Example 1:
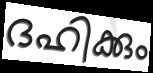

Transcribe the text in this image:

ദഹിക്കും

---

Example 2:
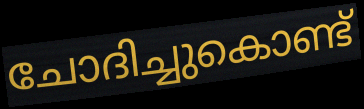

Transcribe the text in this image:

ചോദിച്ചുകൊണ്ട്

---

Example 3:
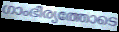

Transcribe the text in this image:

ഗാംഭീര്യത്തോടെ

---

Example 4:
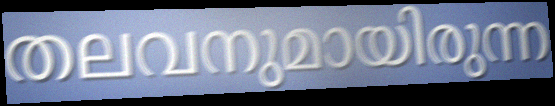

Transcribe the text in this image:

തലവനുമായിരുന്ന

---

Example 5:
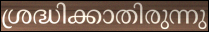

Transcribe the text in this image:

ശ്രദ്ധിക്കാതിരുന്നു